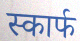
स्कार्फ